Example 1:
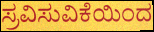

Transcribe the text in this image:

ಸ್ರವಿಸುವಿಕೆಯಿಂದ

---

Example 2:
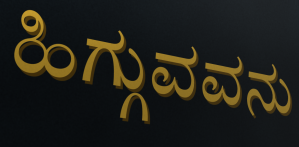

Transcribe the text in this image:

ಹಿಗ್ಗುವವನು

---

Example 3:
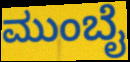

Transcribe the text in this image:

ಮುಂಬೈ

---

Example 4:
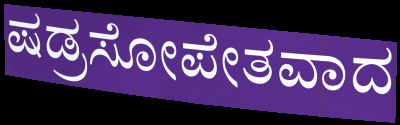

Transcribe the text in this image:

ಷಡ್ರಸೋಪೇತವಾದ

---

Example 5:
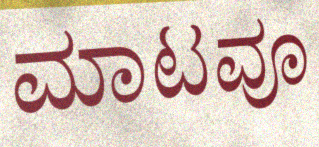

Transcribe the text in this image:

ಮಾಟವೂ